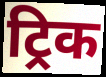
ट्रिक